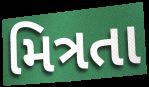
મિત્રતા